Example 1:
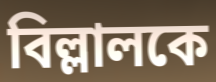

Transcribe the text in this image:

বিল্লালকে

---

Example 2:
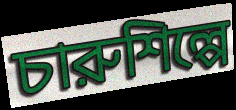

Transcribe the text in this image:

চারুশিল্পে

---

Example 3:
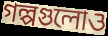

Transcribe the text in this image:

গল্পগুলোও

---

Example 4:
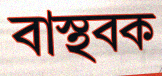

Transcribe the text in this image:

বাস্থবক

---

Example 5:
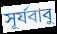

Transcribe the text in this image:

সূর্যবাবু